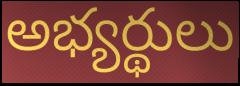
అభ్యర్థులు